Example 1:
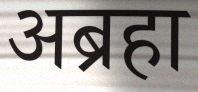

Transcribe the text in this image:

अब्रहा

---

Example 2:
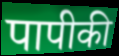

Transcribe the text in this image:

पापीकी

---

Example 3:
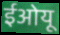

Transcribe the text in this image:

ईओयू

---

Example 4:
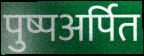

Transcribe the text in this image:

पुष्पअर्पित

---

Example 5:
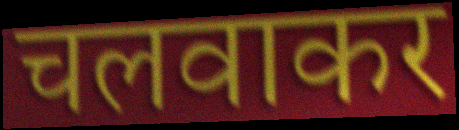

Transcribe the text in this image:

चलवाकर